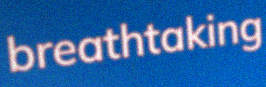
breathtaking